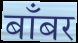
बाँबर